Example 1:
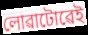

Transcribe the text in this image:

লোৱাটোৱেই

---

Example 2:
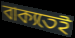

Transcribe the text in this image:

বাক্যতেই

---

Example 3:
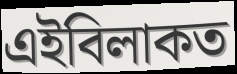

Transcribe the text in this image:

এইবিলাকত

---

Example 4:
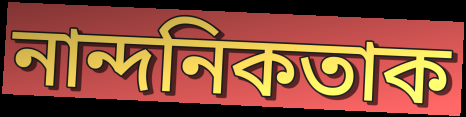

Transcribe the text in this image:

নান্দনিকতাক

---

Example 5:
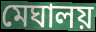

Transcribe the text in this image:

মেঘালয়